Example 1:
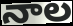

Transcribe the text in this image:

నాల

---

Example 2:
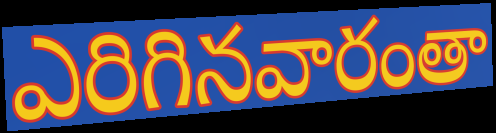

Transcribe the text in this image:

ఎరిగినవారంతా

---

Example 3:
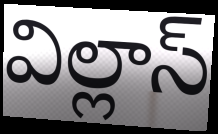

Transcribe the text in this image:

విల్లాస్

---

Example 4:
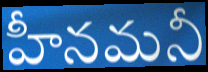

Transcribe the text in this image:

హీనమనీ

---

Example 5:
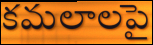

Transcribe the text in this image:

కమలాలపై